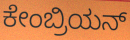
ಕೇಂಬ್ರಿಯನ್